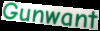
Gunwant